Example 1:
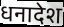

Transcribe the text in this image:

धनादेश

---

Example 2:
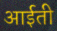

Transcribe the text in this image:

आईती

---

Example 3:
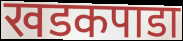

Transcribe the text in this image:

खडकपाडा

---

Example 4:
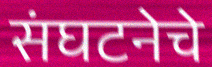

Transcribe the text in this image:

संघटनेचे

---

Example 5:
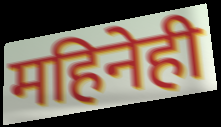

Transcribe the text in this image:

महिनेही